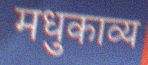
मधुकाव्य